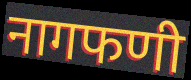
नागफणी